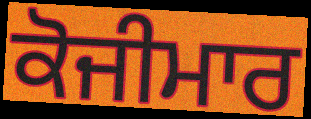
ਕੋਜੀਮਾਰ